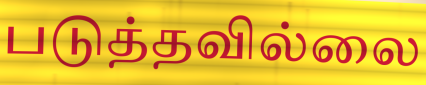
படுத்தவில்லை